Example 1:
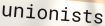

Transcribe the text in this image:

unionists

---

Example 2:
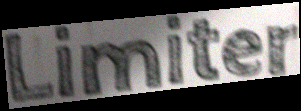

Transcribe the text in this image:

Limiter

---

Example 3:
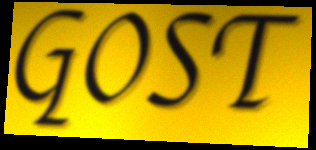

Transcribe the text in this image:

GOST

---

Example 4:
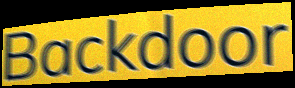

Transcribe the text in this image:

Backdoor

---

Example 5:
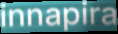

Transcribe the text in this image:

innapira